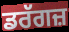
ਡਰੱਗਜ਼